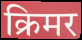
क्रिमर